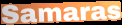
Samaras